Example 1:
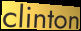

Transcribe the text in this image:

clinton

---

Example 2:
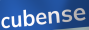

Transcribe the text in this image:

cubense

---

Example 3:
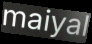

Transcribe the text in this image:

maiyal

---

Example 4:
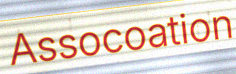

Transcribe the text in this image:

Assocoation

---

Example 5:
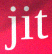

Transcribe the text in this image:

jit